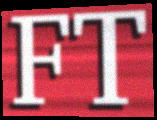
FT